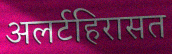
अलर्टहिरासत